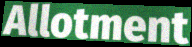
Allotment